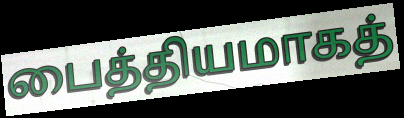
பைத்தியமாகத்